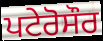
ਪਟੇਰੋਸੌਰ